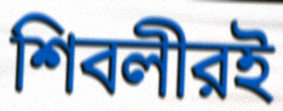
শিবলীরই